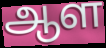
ஆள